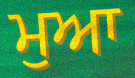
ਮੁਆ